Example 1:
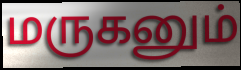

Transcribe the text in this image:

மருகனும்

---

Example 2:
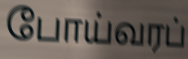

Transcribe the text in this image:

போய்வரப்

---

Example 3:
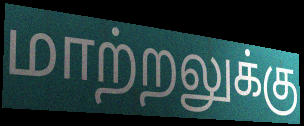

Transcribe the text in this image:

மாற்றலுக்கு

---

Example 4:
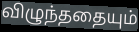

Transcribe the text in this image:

விழுந்ததையும்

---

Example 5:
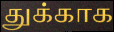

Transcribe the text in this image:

துக்காக